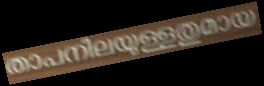
താപനിലയുള്ളതുമായ